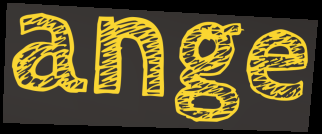
ange